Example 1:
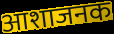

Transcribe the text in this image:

आशाजनक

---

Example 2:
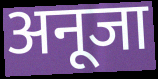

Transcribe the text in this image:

अनूजा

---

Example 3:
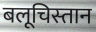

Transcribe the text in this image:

बलूचिस्‍तान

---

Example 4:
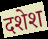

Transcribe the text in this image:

दशेश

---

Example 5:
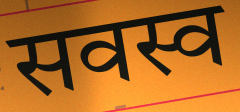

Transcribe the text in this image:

सवस्व